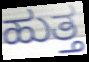
ಹುತ್ತ